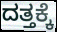
ದತ್ತಕ್ಕೆ